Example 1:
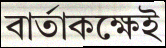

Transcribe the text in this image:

বার্তাকক্ষেই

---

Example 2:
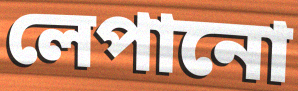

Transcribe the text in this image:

লেপানো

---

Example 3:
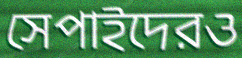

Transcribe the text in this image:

সেপাইদেরও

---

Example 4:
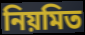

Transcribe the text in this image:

নিয়মিত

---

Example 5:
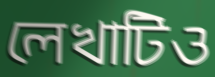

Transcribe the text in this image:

লেখাটিও